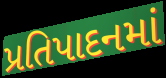
પ્રતિપાદનમાં